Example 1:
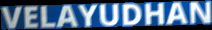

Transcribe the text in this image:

VELAYUDHAN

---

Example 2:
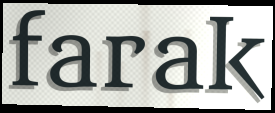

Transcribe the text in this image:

farak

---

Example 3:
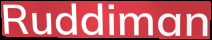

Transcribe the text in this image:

Ruddiman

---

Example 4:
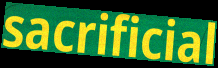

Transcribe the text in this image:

sacrificial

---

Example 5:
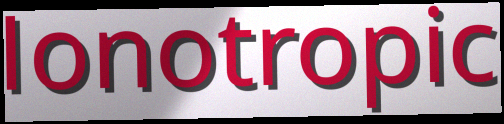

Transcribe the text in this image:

Ionotropic